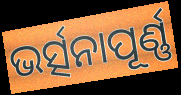
ଭର୍ତ୍ସନାପୂର୍ଣ୍ଣ